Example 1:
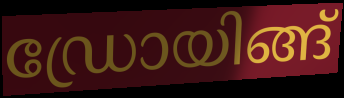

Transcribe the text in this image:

ഡ്രോയിങ്ങ്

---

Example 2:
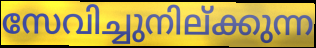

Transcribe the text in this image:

സേവിച്ചുനില്ക്കുന്ന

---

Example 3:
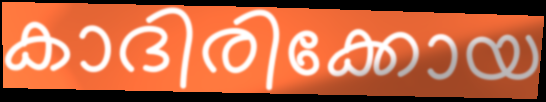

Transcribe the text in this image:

കാദിരിക്കോയ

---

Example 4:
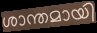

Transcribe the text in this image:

ശാന്തമായി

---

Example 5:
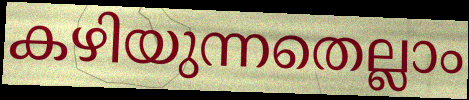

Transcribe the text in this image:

കഴിയുന്നതെല്ലാം